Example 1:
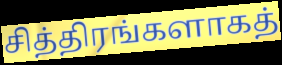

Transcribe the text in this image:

சித்திரங்களாகத்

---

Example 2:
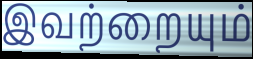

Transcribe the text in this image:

இவற்றையும்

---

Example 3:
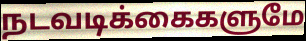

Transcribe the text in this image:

நடவடிக்கைகளுமே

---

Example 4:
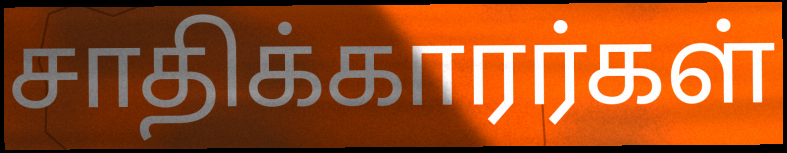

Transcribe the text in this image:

சாதிக்காரர்கள்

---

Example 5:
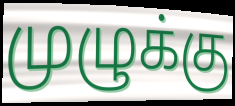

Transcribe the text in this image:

முழுக்கு